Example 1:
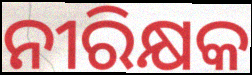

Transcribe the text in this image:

ନୀରିକ୍ଷକ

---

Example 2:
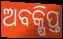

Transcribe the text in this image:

ଅବକ୍ଷିପ୍ତ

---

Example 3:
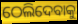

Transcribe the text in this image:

ଠେଲିଦେବାକୁ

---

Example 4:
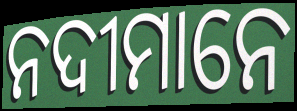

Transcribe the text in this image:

ନଦୀମାନେ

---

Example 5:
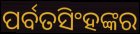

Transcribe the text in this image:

ପର୍ବତସିଂହଙ୍କର